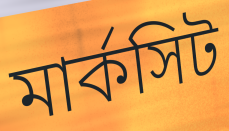
মার্কসিট